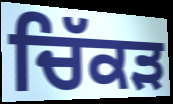
ਚਿੱਕੜ